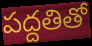
పద్దతితో